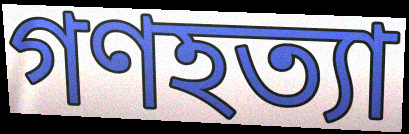
গণহত্যা